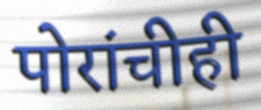
पोरांचीही